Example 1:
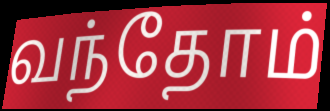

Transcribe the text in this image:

வந்தோம்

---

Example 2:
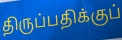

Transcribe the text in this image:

திருப்பதிக்குப்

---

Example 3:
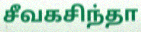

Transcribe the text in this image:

சீவகசிந்தா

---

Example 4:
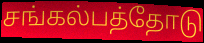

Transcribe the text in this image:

சங்கல்பத்தோடு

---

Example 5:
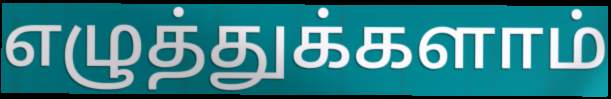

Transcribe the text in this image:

எழுத்துக்களாம்